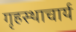
गृहस्थाचार्य